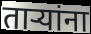
तार्‍यांना